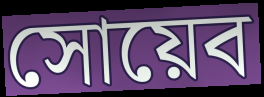
সোয়েব